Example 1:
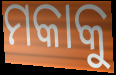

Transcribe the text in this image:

ମକାକୁ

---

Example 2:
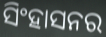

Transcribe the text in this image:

ସିଂହାସନର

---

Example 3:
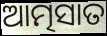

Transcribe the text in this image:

ଆତ୍ମସାତ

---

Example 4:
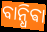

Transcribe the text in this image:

ବାନ୍ଧିଵା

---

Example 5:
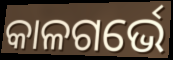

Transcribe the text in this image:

କାଳଗର୍ଭେ